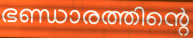
ഭണ്ഡാരത്തിന്റെ